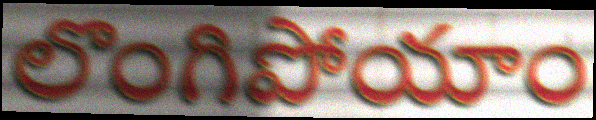
లొంగిపోయాం